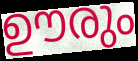
ഊരും